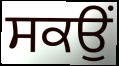
ਸਕਉਂ